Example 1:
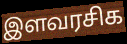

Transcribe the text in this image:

இளவரசிக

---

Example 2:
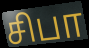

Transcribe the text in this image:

சிபா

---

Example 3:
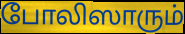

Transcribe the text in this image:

போலிஸாரும்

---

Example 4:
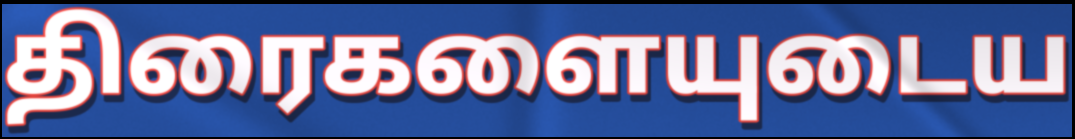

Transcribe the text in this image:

திரைகளையுடைய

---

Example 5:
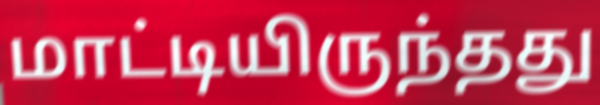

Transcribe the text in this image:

மாட்டியிருந்தது